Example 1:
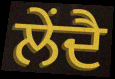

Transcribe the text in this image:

ਲੇਂਦੈ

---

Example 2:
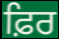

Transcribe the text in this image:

ਫ਼ਿਰ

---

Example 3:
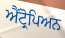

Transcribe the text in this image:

ਐਂਟ੍ਰੋਪਿਅਨ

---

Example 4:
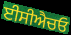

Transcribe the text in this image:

ਈਸੀਐਚਓ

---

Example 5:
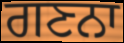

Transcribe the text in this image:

ਗਣਨਾ